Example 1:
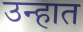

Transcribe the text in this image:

उन्हात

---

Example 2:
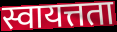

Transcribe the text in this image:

स्वायत्तता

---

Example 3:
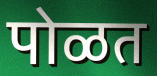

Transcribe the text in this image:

पोळत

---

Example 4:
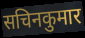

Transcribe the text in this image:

सचिनकुमार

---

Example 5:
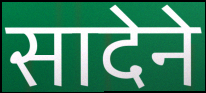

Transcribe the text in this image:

सादेने